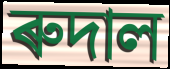
ৰুদাল